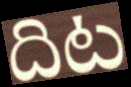
దిట